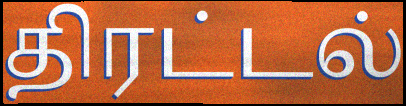
திரட்டல்